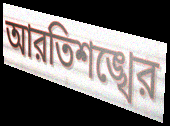
আরতিশঙ্খের